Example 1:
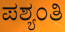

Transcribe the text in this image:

ಪಶ್ಯಂತಿ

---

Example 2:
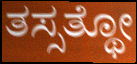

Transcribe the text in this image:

ತಸ್ಸತ್ಥೋ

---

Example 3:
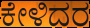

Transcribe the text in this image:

ಕೇಳಿದರ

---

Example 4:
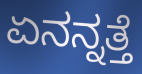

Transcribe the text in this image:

ಏನನ್ನತ್ತೆ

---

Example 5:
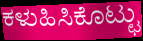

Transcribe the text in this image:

ಕಳುಹಿಸಿಕೊಟ್ಟು